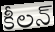
కీలన్